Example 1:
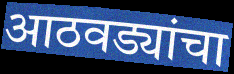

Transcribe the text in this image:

आठवड्यांचा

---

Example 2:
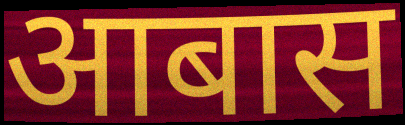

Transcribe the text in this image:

आबास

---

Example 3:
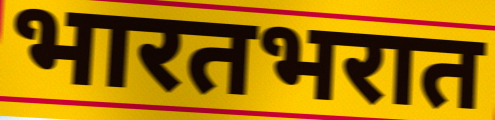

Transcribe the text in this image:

भारतभरात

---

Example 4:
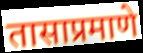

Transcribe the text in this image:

तासाप्रमाणे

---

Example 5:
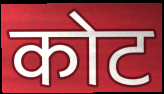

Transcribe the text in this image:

कोट